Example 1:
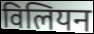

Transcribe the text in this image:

विलियन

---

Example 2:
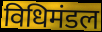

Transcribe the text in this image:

विधिमंडल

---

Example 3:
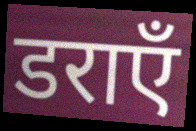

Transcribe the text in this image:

डराएँ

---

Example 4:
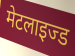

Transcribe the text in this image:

मेटलाइज्ड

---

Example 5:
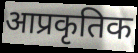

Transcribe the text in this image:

आप्रकृतिक